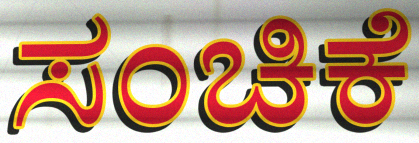
ಸಂಚಿಕೆ